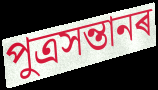
পুত্ৰসন্তানৰ